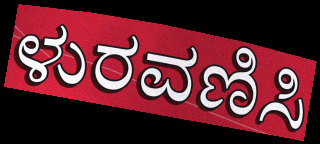
ಳುರವಣಿಸಿ